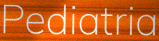
Pediatria